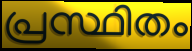
പ്രസ്ഥിതം